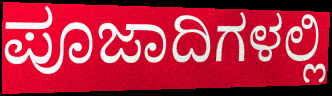
ಪೂಜಾದಿಗಳಲ್ಲಿ